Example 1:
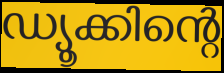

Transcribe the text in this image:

ഡ്യൂക്കിന്റെ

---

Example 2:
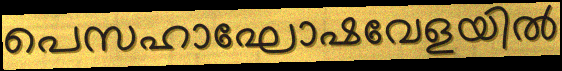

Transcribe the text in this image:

പെസഹാഘോഷവേളയിൽ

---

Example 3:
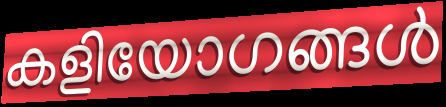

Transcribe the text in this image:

കളിയോഗങ്ങൾ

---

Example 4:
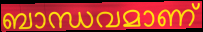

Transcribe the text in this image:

ബാന്ധവമാണ്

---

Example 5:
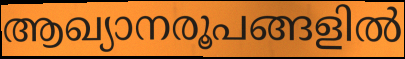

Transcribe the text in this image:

ആഖ്യാനരൂപങ്ങളിൽ